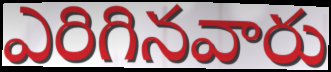
ఎరిగినవారు